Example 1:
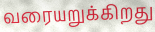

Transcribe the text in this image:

வரையறுக்கிறது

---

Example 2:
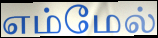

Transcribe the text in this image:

எம்மேல்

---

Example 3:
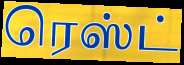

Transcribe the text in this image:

ரெஸ்ட்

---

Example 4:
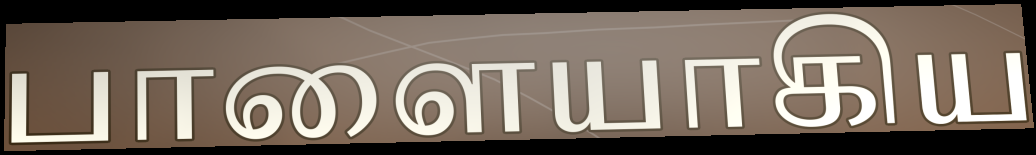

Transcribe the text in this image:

பாளையாகிய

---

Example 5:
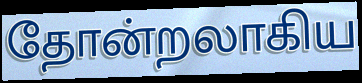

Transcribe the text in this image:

தோன்றலாகிய